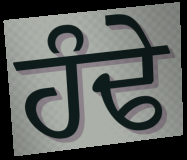
ਹੰਢੇ